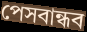
পেসবান্ধব